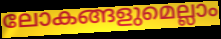
ലോകങ്ങളുമെല്ലാം